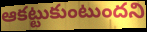
ఆకట్టుకుంటుందని